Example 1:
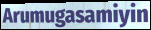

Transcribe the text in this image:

Arumugasamiyin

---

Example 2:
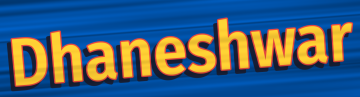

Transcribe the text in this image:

Dhaneshwar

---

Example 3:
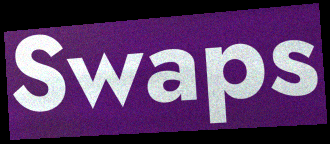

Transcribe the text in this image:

Swaps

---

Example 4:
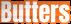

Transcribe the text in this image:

Butters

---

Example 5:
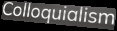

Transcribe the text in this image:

Colloquialism